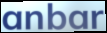
anbar